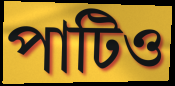
পাটিও